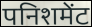
पनिशमेंट